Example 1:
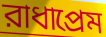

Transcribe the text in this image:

রাধাপ্রেম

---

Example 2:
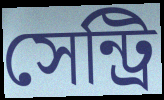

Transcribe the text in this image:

সেন্ট্রি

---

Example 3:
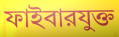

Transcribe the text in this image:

ফাইবারযুক্ত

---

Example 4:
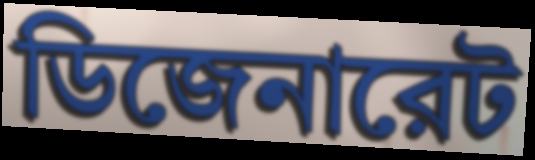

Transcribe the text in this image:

ডিজেনারেট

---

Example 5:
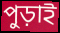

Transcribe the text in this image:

পুড়াই